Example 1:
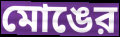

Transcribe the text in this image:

মোঙের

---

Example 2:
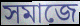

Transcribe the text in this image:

সমাজে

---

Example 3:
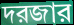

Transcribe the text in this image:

দরজার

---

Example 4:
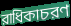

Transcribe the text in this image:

রাধিকাচরণ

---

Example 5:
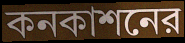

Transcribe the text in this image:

কনকাশনের